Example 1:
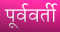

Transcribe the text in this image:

पूर्ववर्ती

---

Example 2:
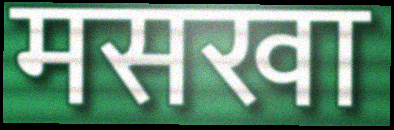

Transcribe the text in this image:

मसखा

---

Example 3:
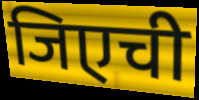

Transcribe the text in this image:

जिएची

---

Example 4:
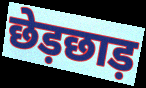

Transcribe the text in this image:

छेड़छाड़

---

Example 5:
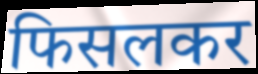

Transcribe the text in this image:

फिसलकर